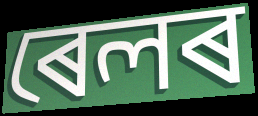
ৰেলৰ